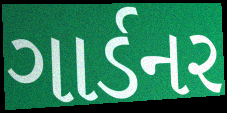
ગાર્ડનર